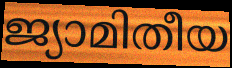
ജ്യാമിതീയ